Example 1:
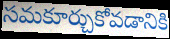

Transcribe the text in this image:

సమకూర్చుకోవడానికి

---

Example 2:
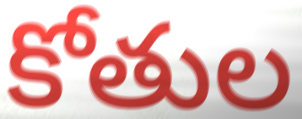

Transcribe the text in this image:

కోతుల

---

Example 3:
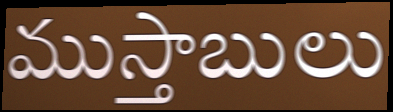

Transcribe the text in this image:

ముస్తాబులు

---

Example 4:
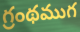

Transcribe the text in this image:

గ్రంథముగ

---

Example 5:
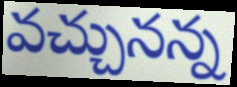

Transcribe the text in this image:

వచ్చునన్న